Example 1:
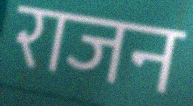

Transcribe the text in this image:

राजन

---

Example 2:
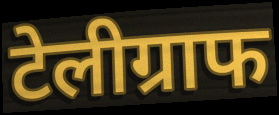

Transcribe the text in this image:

टेलीग्राफ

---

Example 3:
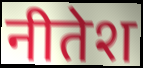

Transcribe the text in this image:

नीतेश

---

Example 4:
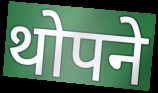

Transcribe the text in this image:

थोपने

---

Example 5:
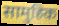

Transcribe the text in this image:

सामुहिक